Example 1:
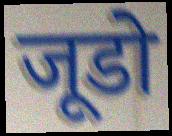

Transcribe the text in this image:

जूडो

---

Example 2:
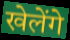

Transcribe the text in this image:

खेलेंगे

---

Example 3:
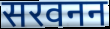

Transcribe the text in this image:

सरवनन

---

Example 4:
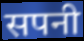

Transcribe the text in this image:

सपनी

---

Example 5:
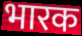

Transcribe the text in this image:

भारक